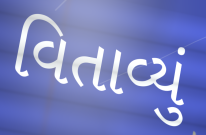
વિતાવ્યું